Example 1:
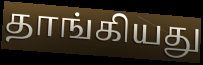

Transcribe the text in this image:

தாங்கியது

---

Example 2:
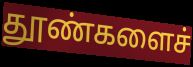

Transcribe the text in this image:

தூண்களைச்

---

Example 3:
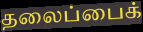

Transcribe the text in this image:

தலைப்பைக்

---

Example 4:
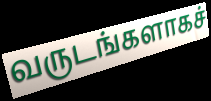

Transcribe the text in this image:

வருடங்களாகச்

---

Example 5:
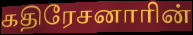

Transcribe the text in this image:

கதிரேசனாரின்